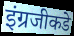
इंग्रजीकडे